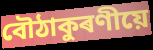
বৌঠাকুৰণীয়ে